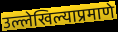
उल्लेखिल्याप्रमाणे